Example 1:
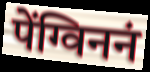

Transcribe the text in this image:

पेंग्विननं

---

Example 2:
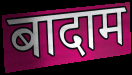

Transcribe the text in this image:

बादाम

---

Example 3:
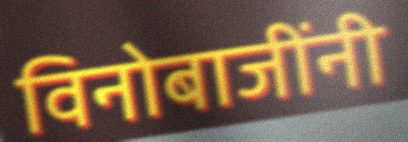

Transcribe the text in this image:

विनोबाजींनी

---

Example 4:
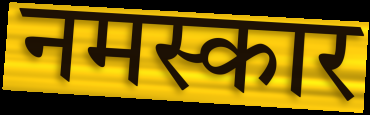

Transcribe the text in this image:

नमस्कार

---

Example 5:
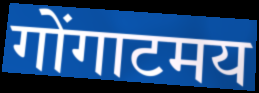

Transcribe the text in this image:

गोंगाटमय